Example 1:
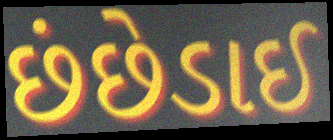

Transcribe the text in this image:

છંછેડાઈ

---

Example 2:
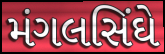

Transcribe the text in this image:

મંગલસિંઘે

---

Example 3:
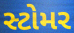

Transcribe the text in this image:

સ્ટોમર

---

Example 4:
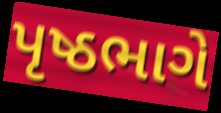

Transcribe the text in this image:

પૃષ્ઠભાગે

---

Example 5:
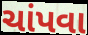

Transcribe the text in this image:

ચાંપવા